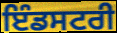
ਇੰਡਸਟਰੀ